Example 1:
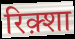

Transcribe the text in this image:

रिक़्शा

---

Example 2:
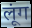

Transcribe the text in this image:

लूंग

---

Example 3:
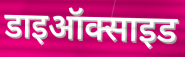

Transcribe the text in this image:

डाइऑक्साइड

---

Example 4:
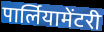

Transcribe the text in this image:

पार्लियामेंटरी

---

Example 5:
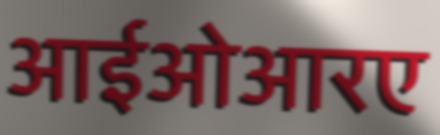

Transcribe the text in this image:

आईओआरए